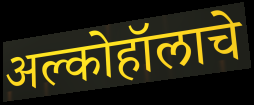
अल्कोहॉलाचे